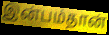
இன்பம்தான்